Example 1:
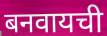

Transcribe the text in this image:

बनवायची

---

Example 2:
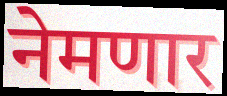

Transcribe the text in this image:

नेमणार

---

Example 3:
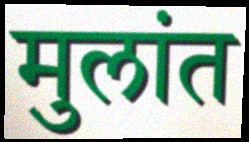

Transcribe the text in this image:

मुलांत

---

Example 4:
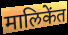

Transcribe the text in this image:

मालिकेंत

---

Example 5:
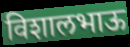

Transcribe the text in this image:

विशालभाऊ